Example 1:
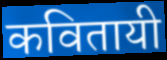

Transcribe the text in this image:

कवितायी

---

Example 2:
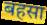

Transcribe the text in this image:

बहसा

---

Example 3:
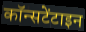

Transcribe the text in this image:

कॉन्सटेंटाइन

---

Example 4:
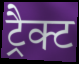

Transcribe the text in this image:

ट्रैक्ट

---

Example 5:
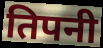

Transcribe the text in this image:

तिपनी